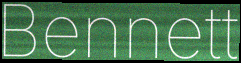
Bennett